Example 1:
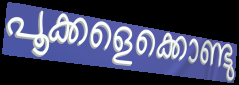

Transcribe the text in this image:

പൂക്കളെക്കൊണ്ടു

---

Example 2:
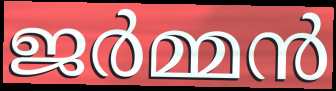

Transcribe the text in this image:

ജർമ്മൻ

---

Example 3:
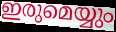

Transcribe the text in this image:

ഇരുമെയ്യും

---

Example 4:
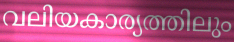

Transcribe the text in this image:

വലിയകാര്യത്തിലും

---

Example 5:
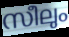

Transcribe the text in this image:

സീലും